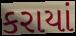
કરાયાં